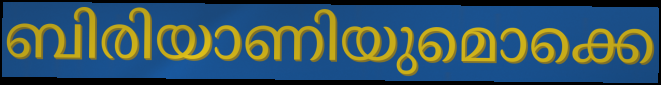
ബിരിയാണിയുമൊക്കെ